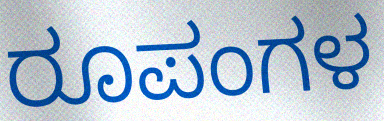
ರೂಪಂಗಳ